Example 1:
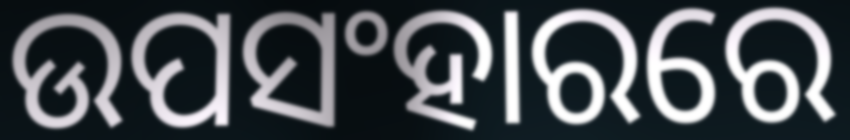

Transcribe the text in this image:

ଉପସଂହାରରେ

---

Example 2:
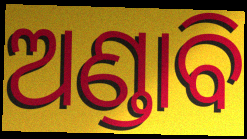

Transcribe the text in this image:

ଅଣ୍ଡାବି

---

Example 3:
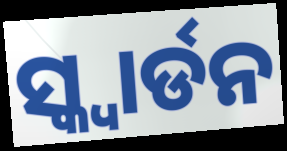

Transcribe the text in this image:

ସ୍କ୍ବାର୍ଡନ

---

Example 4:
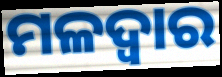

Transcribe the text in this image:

ମଳଦ୍ୱାର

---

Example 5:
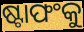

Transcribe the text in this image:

ଷ୍ଟାଫଂକୁ